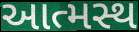
આત્મસ્થ